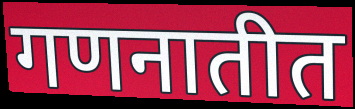
गणनातीत